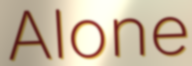
Alone